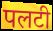
पलटी